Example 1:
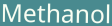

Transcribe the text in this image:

Methanol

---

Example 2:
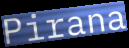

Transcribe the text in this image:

Pirana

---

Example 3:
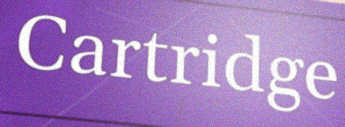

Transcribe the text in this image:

Cartridge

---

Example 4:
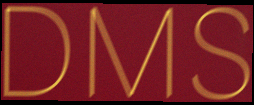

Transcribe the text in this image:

DMS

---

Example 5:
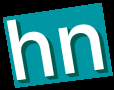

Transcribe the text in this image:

hn